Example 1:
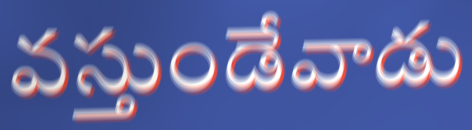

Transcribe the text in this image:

వస్తుండేవాడు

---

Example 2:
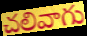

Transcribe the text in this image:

చలివాగు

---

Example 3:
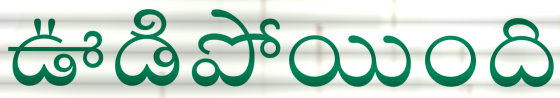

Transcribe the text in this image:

ఊడిపోయింది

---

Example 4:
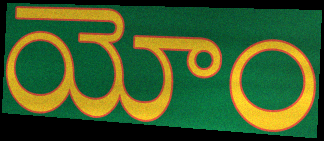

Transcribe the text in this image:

యోం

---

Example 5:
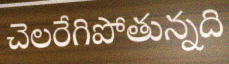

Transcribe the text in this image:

చెలరేగిపోతున్నది